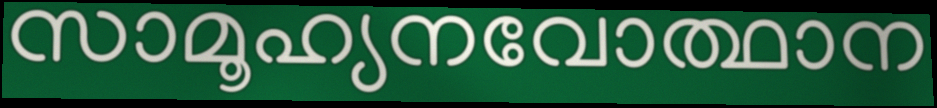
സാമൂഹ്യനവോത്ഥാന